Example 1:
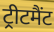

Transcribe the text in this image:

ट्रीटमैंट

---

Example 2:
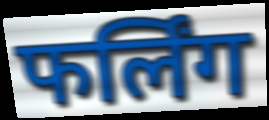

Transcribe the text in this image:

फर्लिंग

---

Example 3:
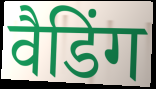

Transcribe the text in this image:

वैडिंग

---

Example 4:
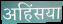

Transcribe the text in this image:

अहिंसया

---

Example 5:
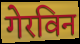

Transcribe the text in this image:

गेरविन